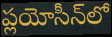
ప్లయోసీన్‌లో